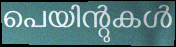
പെയിന്റുകൾ